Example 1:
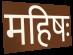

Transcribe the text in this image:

महिषः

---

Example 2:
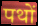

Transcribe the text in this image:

पथों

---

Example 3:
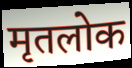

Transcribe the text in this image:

मृतलोक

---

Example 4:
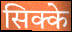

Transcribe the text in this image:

सिक्के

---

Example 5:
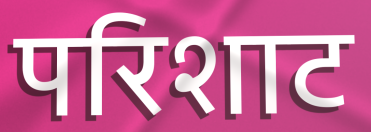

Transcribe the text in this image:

परिशाट